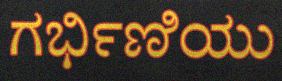
ಗರ್ಭಿಣಿಯು